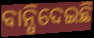
ବାନ୍ଧିଦେଇଛି